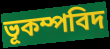
ভূকম্পবিদ